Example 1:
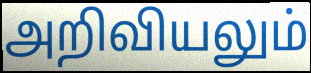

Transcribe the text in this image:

அறிவியலும்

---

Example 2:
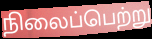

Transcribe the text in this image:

நிலைப்பெற்று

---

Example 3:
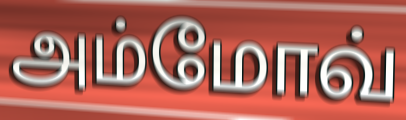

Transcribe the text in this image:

அம்மோவ்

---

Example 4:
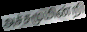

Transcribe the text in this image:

அச்சமுமின்றி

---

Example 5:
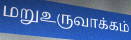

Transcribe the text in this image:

மறுஉருவாக்கம்